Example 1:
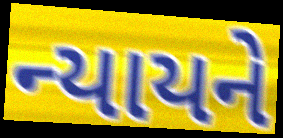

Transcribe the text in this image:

ન્યાયને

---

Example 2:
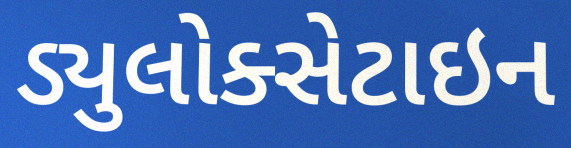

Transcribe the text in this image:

ડ્યુલોક્સેટાઇન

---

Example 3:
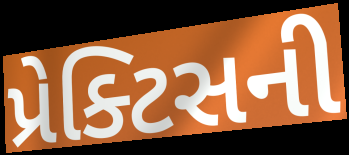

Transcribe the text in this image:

પ્રેક્ટિસની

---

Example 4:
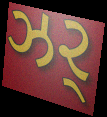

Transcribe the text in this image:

ઝર્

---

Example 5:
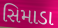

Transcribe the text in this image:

સિમાડા